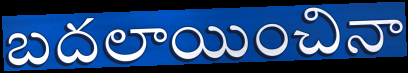
బదలాయించినా